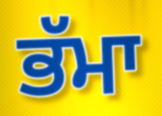
ਭੱਮਾ